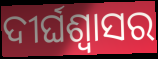
ଦୀର୍ଘଶ୍ବାସର